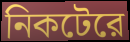
নিকটেরে